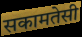
सकामतेसी